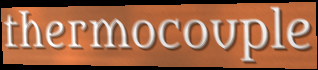
thermocouple